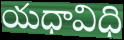
యధావిధి